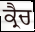
ਕ੍ਰੈਚ